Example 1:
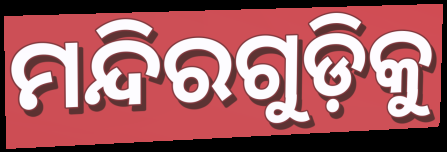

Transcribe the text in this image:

ମନ୍ଦିରଗୁଡ଼ିକୁ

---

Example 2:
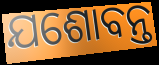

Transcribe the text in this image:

ଯଶୋବନ୍ତ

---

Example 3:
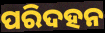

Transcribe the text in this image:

ପରିଦହନ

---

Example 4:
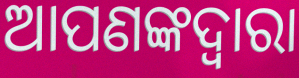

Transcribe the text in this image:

ଆପଣଙ୍କଦ୍ବାରା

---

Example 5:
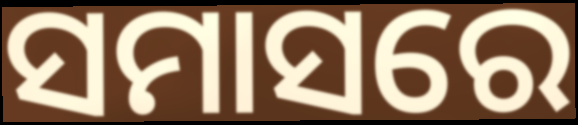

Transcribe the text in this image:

ସମାସରେ